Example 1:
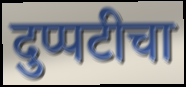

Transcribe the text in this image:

दुप्पटीचा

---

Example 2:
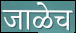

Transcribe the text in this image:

जाळेच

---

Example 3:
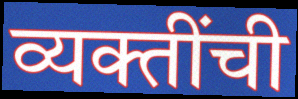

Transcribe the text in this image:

व्‍यक्‍तींची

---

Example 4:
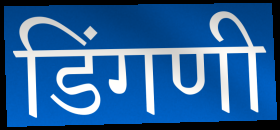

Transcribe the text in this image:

डिंगणी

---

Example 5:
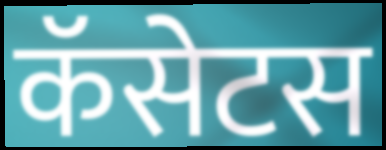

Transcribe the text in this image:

कॅसेटस